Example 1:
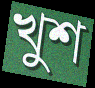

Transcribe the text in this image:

খুশ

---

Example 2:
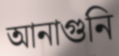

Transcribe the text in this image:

আনাগুনি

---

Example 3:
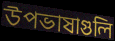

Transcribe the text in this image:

উপভাষাগুলি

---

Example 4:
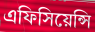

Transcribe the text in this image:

এফিসিয়েন্সি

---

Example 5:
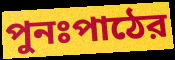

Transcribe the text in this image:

পুনঃপাঠের